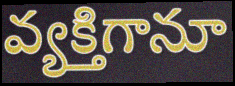
వ్యక్తిగానూ